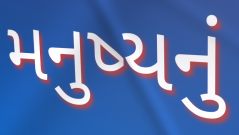
મનુષ્યનું